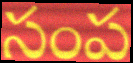
సంప